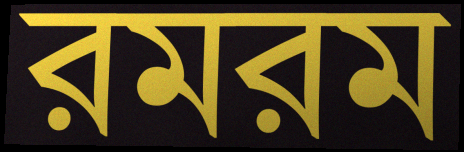
রমরম